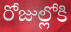
రోజుల్లోకి